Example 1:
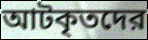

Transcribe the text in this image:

আটকৃতদের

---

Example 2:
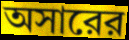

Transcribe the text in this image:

অসারের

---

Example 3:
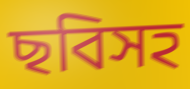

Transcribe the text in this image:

ছবিসহ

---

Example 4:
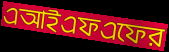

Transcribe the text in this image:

এআইএফএফের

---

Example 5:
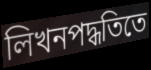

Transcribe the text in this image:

লিখনপদ্ধতিতে